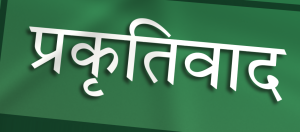
प्रकृतिवाद